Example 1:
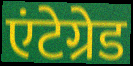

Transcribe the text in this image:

एंटेग्रेड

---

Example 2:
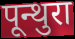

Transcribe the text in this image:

पून्थुरा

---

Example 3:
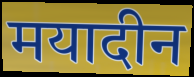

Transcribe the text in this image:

मयादीन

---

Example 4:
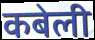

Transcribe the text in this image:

कबेली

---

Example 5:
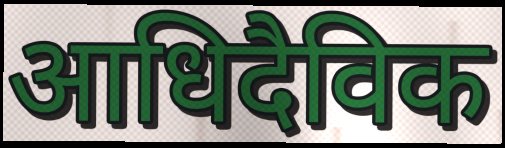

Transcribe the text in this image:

आधिदैविक